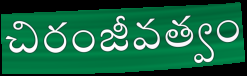
చిరంజీవత్వం